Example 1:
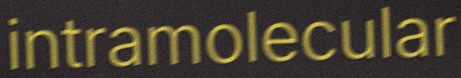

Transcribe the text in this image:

intramolecular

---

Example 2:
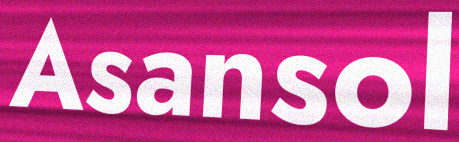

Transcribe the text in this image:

Asansol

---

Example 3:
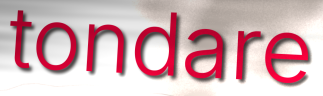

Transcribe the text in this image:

tondare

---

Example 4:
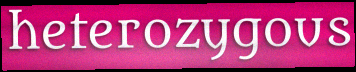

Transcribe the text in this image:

heterozygous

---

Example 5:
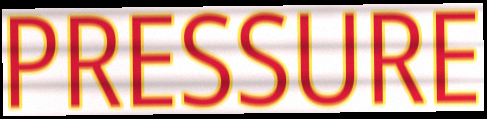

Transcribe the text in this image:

PRESSURE